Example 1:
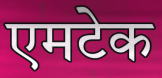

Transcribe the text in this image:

एमटेक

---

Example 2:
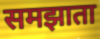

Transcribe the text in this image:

समझाता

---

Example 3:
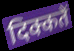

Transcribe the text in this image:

दिक्कतें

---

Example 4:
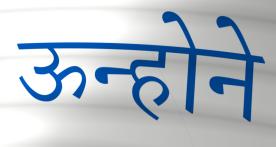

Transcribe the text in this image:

ऊन्होने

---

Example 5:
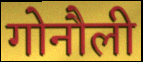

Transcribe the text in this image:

गोनौली